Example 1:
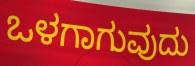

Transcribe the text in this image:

ಒಳಗಾಗುವುದು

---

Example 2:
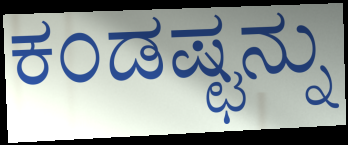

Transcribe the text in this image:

ಕಂಡಷ್ಟನ್ನು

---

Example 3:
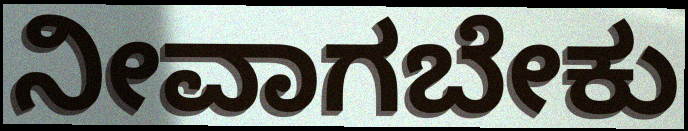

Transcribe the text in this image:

ನೀವಾಗಬೇಕು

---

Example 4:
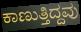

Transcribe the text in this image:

ಕಾಣುತ್ತಿದ್ದವು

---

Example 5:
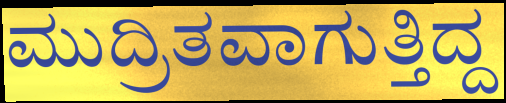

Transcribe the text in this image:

ಮುದ್ರಿತವಾಗುತ್ತಿದ್ದ